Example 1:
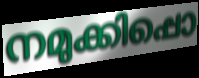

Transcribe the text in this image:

നമുക്കിപ്പൊ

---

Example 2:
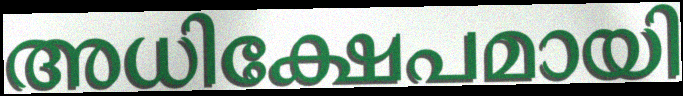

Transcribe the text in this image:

അധിക്ഷേപമായി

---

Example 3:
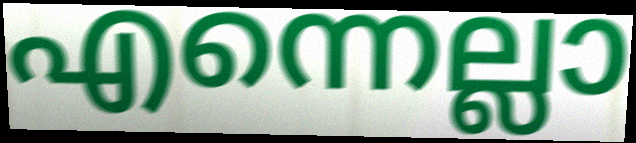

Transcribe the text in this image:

എന്നെല്ലാ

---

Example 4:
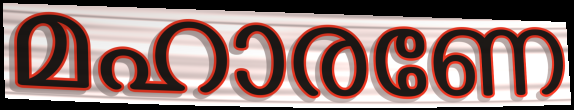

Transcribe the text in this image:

മഹാരണേ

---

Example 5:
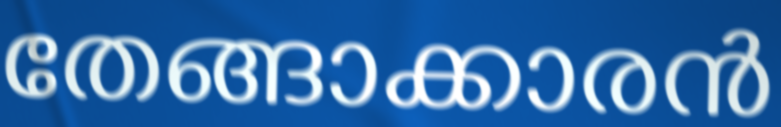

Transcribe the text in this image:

തേങ്ങാക്കാരൻ